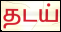
தடய்